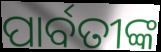
ପାର୍ବତୀଙ୍କ